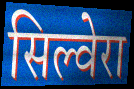
सिल्वेरा